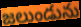
జలుండును